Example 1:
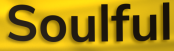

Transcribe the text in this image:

Soulful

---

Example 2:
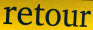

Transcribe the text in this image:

retour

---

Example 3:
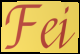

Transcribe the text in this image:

Fei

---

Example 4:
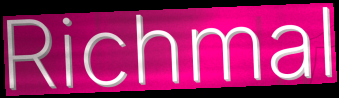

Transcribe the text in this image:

Richmal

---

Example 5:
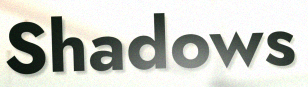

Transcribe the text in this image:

Shadows